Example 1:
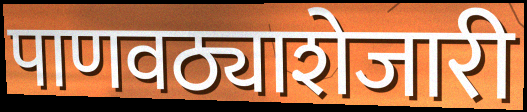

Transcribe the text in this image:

पाणवठ्याशेजारी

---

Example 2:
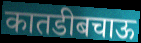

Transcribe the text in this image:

कातडीबचाऊ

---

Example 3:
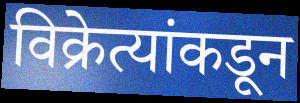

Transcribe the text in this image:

विक्रेत्यांकडून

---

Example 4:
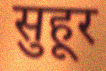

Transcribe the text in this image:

सुहूर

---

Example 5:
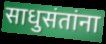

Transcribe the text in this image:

साधुसंतांना